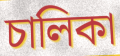
চালিকা